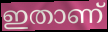
ഇതാണ്